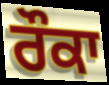
ਰੌਕਾ